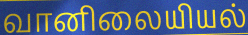
வானிலையியல்